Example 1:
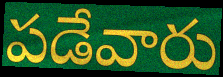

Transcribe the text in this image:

పడేవారు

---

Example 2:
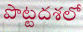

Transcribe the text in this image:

పొట్టదశలో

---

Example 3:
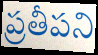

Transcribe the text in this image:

ప్రతీపని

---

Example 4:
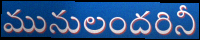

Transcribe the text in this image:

మునులందరినీ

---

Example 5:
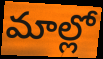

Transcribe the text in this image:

మాల్లో